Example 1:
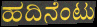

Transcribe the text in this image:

ಹದಿನೆಂಟು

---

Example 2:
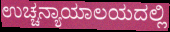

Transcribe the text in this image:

ಉಚ್ಚನ್ಯಾಯಾಲಯದಲ್ಲಿ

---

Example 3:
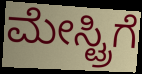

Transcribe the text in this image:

ಮೇಸ್ಟ್ರಿಗೆ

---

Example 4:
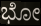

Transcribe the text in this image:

ಭೋ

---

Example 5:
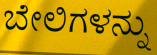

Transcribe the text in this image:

ಬೇಲಿಗಳನ್ನು